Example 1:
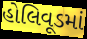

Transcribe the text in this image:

હોલિવૂડમાં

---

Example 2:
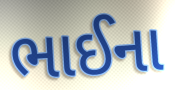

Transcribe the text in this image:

ભાઈના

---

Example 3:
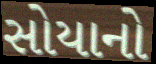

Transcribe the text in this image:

સોયાનો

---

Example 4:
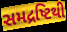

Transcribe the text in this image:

સમદ્રષ્ટિથી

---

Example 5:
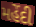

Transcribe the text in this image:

મહેંદી